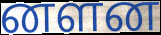
னளன